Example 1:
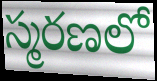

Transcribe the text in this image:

స్మరణలో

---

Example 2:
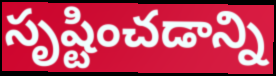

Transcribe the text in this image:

సృష్టించడాన్ని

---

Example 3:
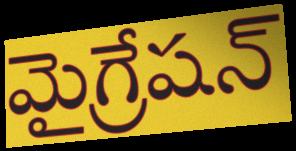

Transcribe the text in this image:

మైగ్రేషన్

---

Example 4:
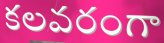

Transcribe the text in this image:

కలవరంగా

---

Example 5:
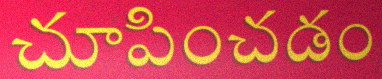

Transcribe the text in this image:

చూపించడం